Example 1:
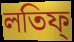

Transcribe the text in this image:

লতিফ্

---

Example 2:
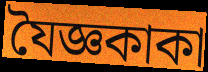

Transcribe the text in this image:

যৈজ্ঞকাকা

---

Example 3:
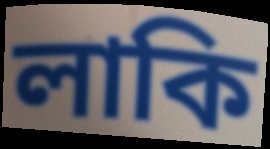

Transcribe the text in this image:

লাকি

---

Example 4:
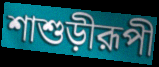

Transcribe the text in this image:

শাশুড়ীরূপী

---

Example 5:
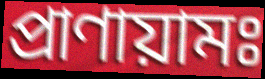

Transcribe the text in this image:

প্রাণায়ামঃ